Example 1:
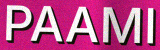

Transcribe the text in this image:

PAAMI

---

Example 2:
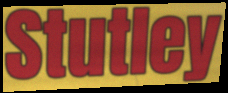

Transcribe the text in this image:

Stutley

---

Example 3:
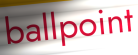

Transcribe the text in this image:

ballpoint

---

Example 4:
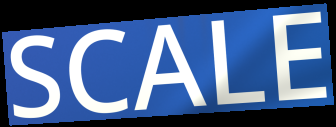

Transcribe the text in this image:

SCALE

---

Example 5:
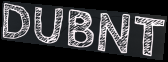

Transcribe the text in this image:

DUBNT